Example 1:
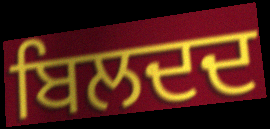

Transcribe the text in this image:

ਬਿਲਦਦ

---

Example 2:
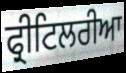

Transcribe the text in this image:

ਫ੍ਰੀਟਿਲਰੀਆ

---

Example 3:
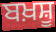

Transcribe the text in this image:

ਬਖ਼ਸ਼ੂ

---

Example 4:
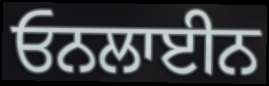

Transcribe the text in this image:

ਓਨਲਾਈਨ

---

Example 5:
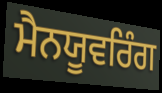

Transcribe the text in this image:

ਮੈਨਯੂਵਰਿੰਗ